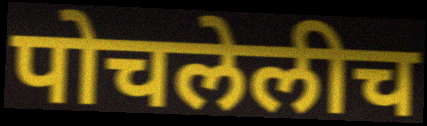
पोचलेलीच